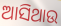
ଆସିଥାଉ